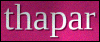
thapar